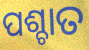
ପଶ୍ଚାତ